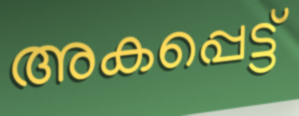
അകപ്പെട്ട്